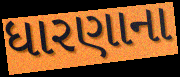
ધારણાના